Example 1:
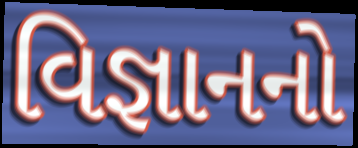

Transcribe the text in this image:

વિજ્ઞાનનો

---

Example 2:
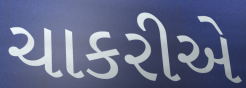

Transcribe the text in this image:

ચાકરીએ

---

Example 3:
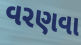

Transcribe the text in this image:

વરણવા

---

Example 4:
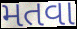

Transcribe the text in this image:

મતવા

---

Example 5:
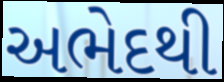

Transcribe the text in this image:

અભેદથી